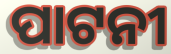
ପାଟନୀ